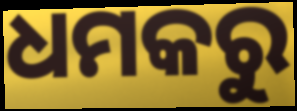
ଧମକରୁ